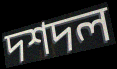
দশদল